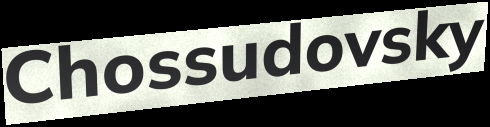
Chossudovsky